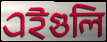
এইগুলি